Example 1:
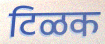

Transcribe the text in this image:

टिळक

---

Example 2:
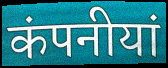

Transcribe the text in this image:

कंपनीयां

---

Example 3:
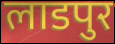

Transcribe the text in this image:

लाडपुर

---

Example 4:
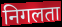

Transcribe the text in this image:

निगलता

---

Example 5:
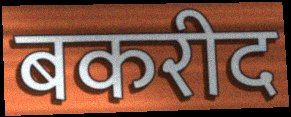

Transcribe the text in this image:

बकरीद